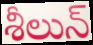
శీలున్